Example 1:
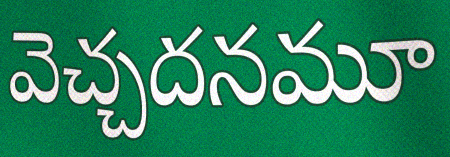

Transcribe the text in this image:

వెచ్చదనమూ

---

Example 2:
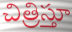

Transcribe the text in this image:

చిత్రిస్తూ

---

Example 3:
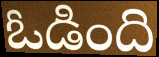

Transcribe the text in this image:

ఓడింది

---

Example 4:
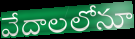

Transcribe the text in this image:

వేదాలలోనూ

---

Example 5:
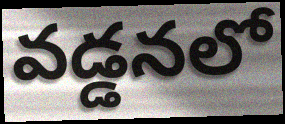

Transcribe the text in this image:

వడ్డనలో